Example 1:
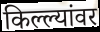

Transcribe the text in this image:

किल्ल्यांवर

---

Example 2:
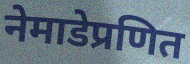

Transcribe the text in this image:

नेमाडेप्रणित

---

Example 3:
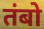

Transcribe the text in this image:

तंबो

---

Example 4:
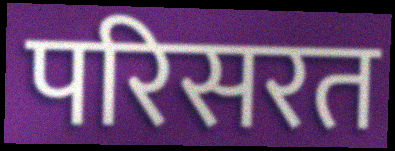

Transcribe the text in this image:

परिसरत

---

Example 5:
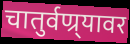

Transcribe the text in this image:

चातुर्वण्र्यावर